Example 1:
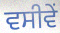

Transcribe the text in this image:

ਵਸੀਵੇਂ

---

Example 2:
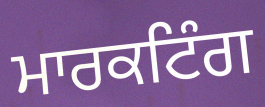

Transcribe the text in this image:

ਮਾਰਕਟਿੰਗ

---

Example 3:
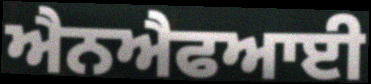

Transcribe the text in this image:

ਐਨਐਫਆਈ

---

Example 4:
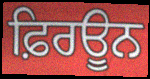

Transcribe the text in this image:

ਫ਼ਿਰਊਨ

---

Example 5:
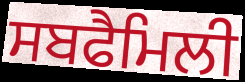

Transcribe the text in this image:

ਸਬਫੈਮਿਲੀ